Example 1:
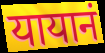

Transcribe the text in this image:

यायानं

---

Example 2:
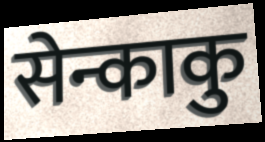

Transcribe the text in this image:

सेन्काकु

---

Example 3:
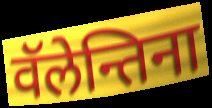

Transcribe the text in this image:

वॅलेन्तिना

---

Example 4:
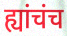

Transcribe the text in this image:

ह्यांचंच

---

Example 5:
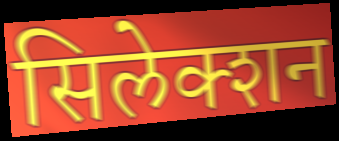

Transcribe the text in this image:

सिलेक्शन